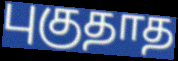
புகுதாத